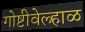
गोष्टीवेल्हाळ